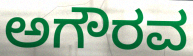
ಅಗೌರವ